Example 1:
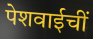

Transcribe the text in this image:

पेशवाईचीं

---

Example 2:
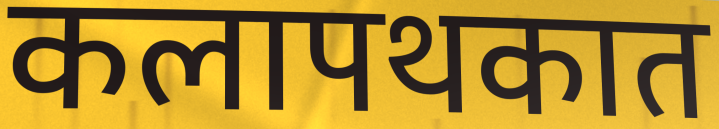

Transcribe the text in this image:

कलापथकात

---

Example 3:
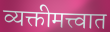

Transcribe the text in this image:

व्यक्तीमत्त्वात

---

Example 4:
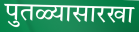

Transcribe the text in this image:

पुतळ्यासारखा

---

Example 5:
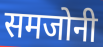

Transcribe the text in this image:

समजोनी